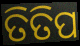
ତିତିପ